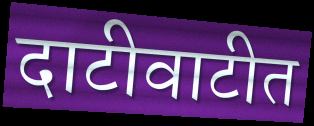
दाटीवाटीत